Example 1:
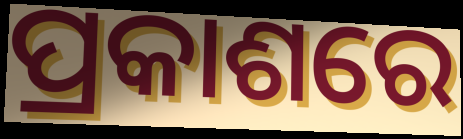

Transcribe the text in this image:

ପ୍ରକାଶରେ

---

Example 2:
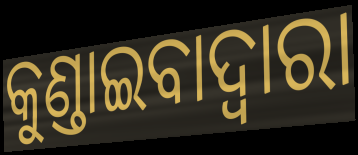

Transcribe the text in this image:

କୁଣ୍ଡାଇବାଦ୍ୱାରା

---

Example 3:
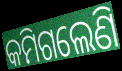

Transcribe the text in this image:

କମିଗଲେଣି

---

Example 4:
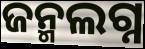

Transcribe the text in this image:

ଜନ୍ମଲଗ୍ନ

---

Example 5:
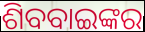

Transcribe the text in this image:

ଶିବବାଇଙ୍କର